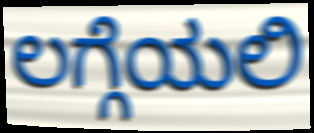
ಲಗ್ಗೆಯಲಿ